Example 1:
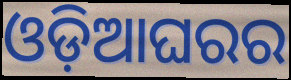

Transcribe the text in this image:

ଓଡ଼ିଆଘରର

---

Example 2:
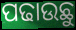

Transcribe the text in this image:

ପଢାଉଛୁ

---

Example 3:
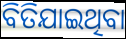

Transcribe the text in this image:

ବିତିଯାଇଥିବା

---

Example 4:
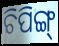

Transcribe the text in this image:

ଚିପିଙ୍ଗ୍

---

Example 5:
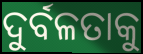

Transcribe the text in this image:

ଦୁର୍ବଳତାକୁ